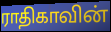
ராதிகாவின்